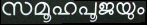
സമൂഹപൂജയും